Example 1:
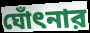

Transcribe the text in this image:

ঘোঁৎনার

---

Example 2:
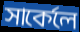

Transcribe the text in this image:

সার্কেলে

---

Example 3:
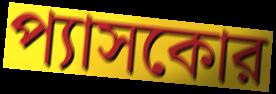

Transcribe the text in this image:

প্যাসকোর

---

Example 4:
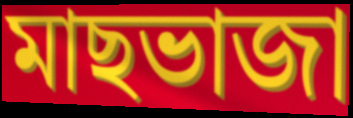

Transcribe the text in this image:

মাছভাজা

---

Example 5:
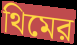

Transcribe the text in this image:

থিমের